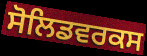
ਸੋਲਿਡਵਰਕਸ